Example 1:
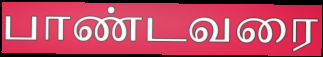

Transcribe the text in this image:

பாண்டவரை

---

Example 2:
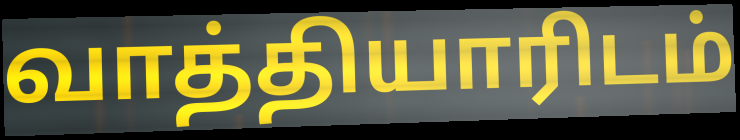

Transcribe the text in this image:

வாத்தியாரிடம்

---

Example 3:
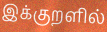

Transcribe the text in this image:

இக்குறளில்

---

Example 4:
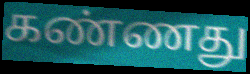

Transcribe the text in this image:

கண்ணது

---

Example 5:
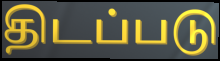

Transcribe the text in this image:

திடப்படு